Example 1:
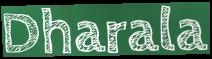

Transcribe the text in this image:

Dharala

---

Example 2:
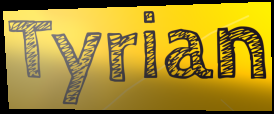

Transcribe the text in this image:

Tyrian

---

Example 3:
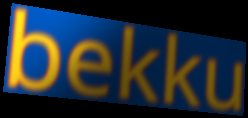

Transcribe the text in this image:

bekku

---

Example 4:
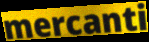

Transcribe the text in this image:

mercanti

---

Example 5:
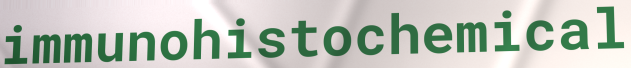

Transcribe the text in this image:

immunohistochemical